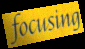
focusing